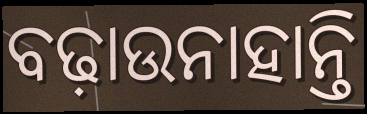
ବଢ଼ାଉନାହାନ୍ତି